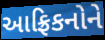
આફ્રિકનોને